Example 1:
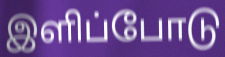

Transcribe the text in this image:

இளிப்போடு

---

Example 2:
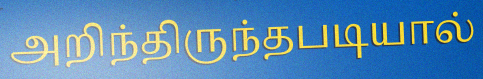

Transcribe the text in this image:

அறிந்திருந்தபடியால்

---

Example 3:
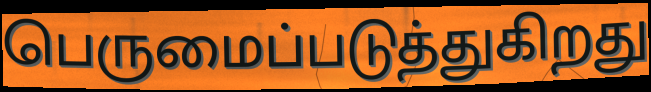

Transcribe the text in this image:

பெருமைப்படுத்துகிறது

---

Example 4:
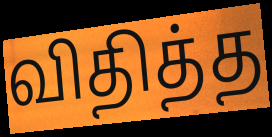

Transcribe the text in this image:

விதித்த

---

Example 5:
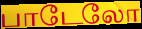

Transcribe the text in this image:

பாடேலோ